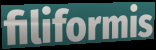
filiformis